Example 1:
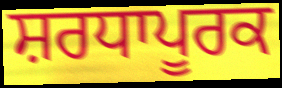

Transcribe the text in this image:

ਸ਼ਰਧਾਪੂਰਕ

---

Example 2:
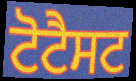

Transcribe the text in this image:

ਟੋਟੈਸਟ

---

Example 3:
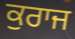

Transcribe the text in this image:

ਕੁਰਾਜ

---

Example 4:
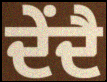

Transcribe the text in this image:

ਦੇਂਦੈ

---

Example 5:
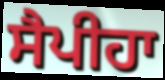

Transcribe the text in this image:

ਸੈਪੀਹਾ